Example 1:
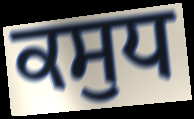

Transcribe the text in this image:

ਕਸੁਧ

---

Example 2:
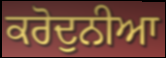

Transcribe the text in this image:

ਕਰੋਦੁਨੀਆ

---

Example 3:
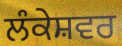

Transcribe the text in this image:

ਲੰਕੇਸ਼ਵਰ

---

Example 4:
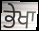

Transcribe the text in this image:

ਭੇਖਾ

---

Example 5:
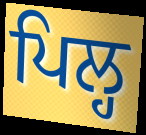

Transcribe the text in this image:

ਪਿਲ੍ਹ